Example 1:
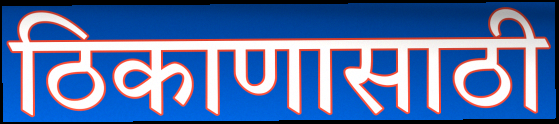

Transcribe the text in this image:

ठिकाणासाठी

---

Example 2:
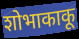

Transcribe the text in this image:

शोभाकाकू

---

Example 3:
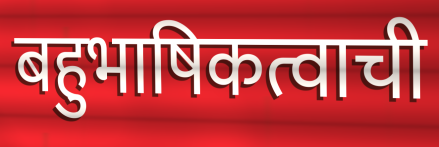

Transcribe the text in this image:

बहुभाषिकत्वाची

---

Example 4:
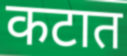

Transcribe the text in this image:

कटात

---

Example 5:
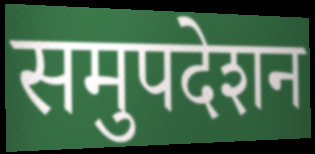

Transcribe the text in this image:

समुपदेशन